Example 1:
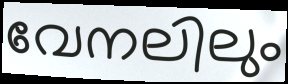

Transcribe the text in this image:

വേനലിലും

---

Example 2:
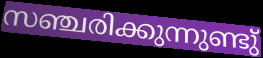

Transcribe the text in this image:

സഞ്ചരിക്കുന്നുണ്ടു്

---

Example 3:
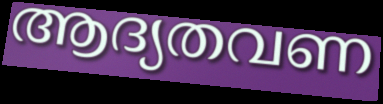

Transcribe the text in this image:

ആദ്യതവണ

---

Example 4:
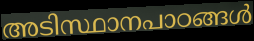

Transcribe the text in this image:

അടിസ്ഥാനപാഠങ്ങൾ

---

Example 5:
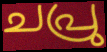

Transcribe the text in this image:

ചപ്രു